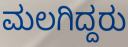
ಮಲಗಿದ್ದರು